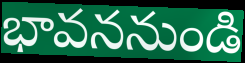
భావననుండి